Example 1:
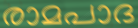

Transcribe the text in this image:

രാമപാദ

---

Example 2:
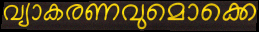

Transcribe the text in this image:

വ്യാകരണവുമൊക്കെ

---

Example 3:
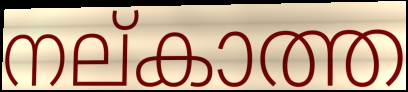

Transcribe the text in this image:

നല്കാത്ത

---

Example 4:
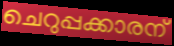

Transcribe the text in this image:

ചെറുപ്പക്കാരന്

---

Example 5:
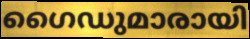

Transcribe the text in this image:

ഗൈഡുമാരായി